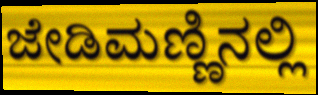
ಜೇಡಿಮಣ್ಣಿನಲ್ಲಿ